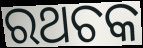
ରଥଚକ